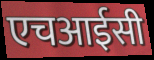
एचआईसी